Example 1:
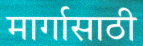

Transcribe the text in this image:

मार्गासाठी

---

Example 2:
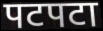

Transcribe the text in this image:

पटपटा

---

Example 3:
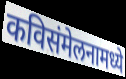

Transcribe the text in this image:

कविसंमेलनामध्ये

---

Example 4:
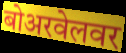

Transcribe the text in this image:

बोअरवेलवर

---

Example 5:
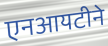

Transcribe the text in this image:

एनआयटीने